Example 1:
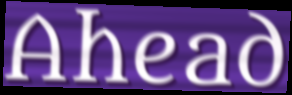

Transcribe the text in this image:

Ahead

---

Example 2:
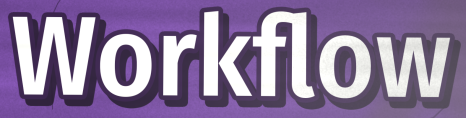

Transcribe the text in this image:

Workflow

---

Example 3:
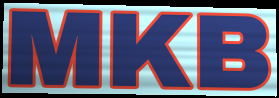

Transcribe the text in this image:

MKB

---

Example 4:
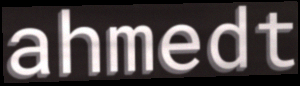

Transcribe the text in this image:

ahmedt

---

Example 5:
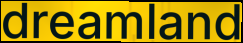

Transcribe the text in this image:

dreamland